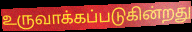
உருவாக்கப்படுகின்றது